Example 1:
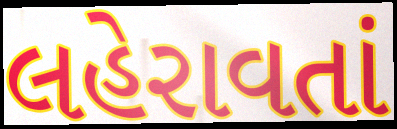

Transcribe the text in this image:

લહેરાવતાં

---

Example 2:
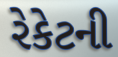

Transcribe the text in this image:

રેકેટની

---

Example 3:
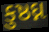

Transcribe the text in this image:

કુષ્ઠઘ્ન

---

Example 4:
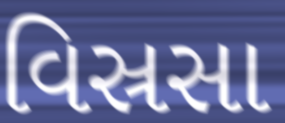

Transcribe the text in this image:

વિસ્રસા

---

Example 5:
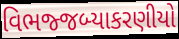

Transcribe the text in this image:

વિભજ્જબ્યાકરણીયો